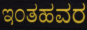
ಇಂತಹವರ